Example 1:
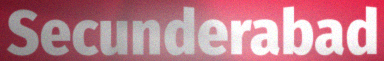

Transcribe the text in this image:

Secunderabad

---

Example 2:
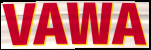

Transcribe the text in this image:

VAWA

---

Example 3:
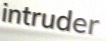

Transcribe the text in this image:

intruder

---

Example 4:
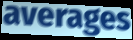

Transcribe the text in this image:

averages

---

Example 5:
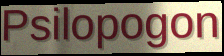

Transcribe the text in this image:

Psilopogon